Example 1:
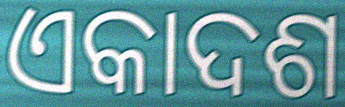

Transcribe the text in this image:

ଏକାଦଶ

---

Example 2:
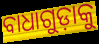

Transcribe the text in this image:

ବାଧାଗୁଡ଼ାକୁ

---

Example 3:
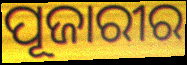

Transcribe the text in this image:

ପୂଜାରୀର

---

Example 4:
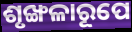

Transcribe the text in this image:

ଶୃଙ୍ଖଳାରୂପେ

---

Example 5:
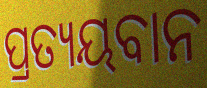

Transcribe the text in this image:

ପ୍ରତ୍ୟୟବାନ